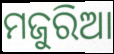
ମଜୁରିଆ